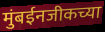
मुंबईनजीकच्या